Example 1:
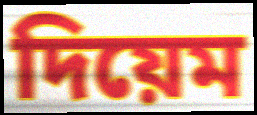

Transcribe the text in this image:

দিয়েম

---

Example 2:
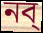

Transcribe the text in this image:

নব্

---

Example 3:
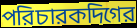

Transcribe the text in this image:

পরিচারকদিগের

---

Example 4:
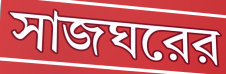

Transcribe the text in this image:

সাজঘরের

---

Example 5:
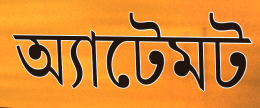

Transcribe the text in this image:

অ্যাটেমট